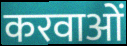
करवाओं